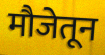
मौजेतून